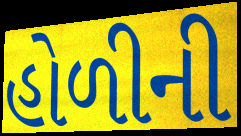
હોળીની